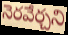
నెరవేర్చని